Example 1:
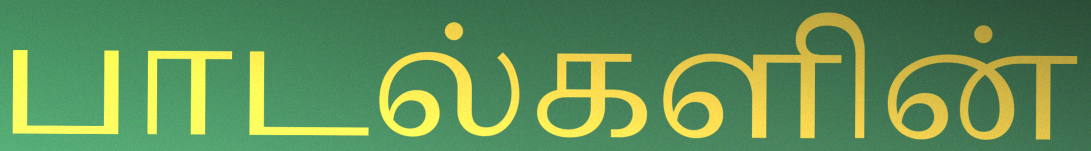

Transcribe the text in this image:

பாடல்களின்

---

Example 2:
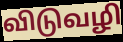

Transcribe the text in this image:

விடுவழி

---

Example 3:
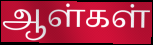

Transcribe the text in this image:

ஆள்கள்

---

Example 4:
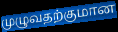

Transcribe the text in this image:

முழுவதற்குமான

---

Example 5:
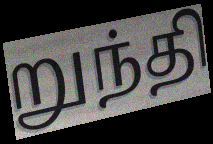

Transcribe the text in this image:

றுந்தி